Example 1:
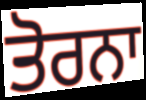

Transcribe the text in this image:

ਤੋਰਨਾ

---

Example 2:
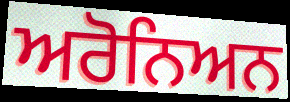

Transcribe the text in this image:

ਅਰੋਨਿਅਨ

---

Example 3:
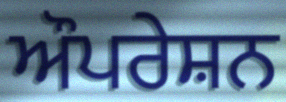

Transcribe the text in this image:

ਔਪਰੇਸ਼ਨ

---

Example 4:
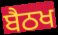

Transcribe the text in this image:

ਬੈਠਖ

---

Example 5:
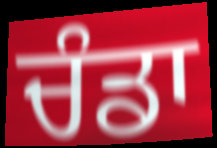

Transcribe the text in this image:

ਚੰਡਾ